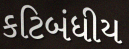
કટિબંધીય